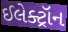
ઈલેક્ટ્રૉન